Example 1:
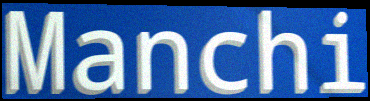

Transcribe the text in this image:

Manchi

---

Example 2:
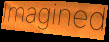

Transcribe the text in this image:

Imagined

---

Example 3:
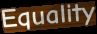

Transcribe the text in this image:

Equality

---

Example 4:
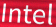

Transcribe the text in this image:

Intel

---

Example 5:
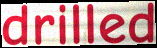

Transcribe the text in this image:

drilled